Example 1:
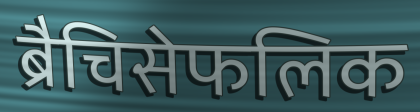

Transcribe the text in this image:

ब्रैचिसेफलिक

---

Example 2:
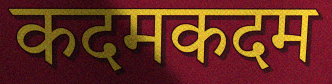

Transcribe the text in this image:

कदमकदम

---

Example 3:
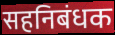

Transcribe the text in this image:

सहनिबंधक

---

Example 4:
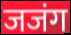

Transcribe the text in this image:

जजंग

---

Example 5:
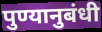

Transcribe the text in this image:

पुण्यानुबंधी